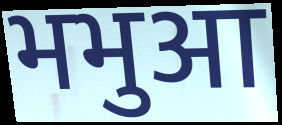
भभुआ